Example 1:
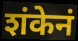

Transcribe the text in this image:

शंकेनं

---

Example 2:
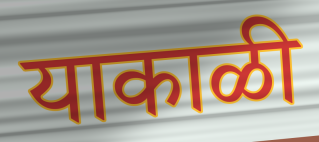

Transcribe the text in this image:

याकाळी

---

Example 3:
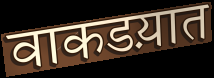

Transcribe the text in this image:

वाकडय़ात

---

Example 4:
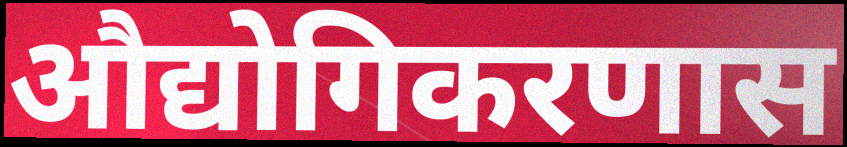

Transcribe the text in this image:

औद्योगिकरणास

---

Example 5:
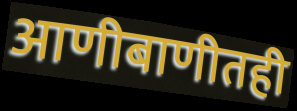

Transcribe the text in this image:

आणीबाणीतही